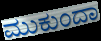
ಮುಕುಂದಾ